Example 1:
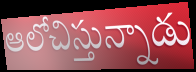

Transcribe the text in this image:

ఆలోచిస్తున్నాడు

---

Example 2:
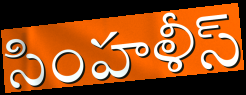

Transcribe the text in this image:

సింహళీస్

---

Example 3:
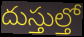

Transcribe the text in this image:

దుస్తుల్తో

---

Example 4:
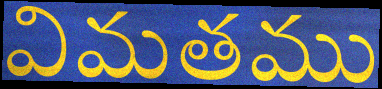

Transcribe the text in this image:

విమతము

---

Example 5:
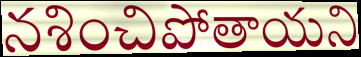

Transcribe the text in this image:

నశించిపోతాయని